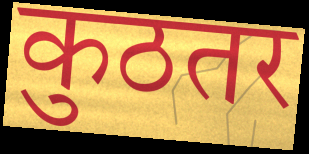
कुठतर